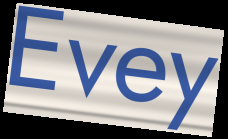
Evey